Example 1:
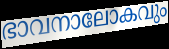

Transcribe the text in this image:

ഭാവനാലോകവും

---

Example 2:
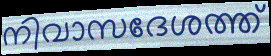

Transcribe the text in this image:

നിവാസദേശത്ത്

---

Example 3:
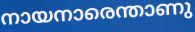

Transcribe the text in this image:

നായനാരെന്താണു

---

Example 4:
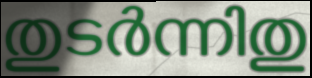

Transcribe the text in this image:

തുടർന്നിതു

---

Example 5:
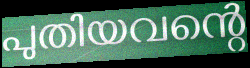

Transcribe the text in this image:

പുതിയവന്റെ